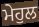
ਮੇਹੁਲ